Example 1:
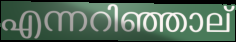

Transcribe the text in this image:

എന്നറിഞ്ഞാല്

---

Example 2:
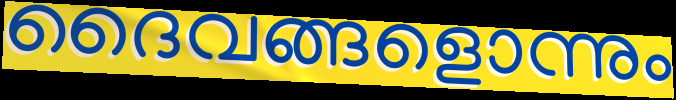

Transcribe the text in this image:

ദൈവങ്ങളൊന്നും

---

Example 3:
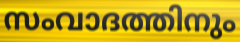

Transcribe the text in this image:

സംവാദത്തിനും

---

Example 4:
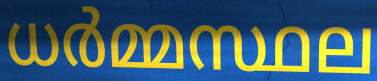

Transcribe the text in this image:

ധർമ്മസ്ഥല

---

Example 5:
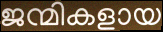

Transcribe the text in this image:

ജന്മികളായ